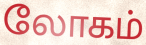
லோகம்